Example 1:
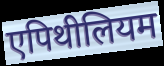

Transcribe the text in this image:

एपिथीलियम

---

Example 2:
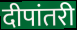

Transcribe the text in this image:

दीपांतरी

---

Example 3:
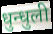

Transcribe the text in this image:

धुन्धुली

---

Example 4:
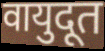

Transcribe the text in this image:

वायुदूत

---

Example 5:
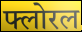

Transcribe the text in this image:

फ्लोरल